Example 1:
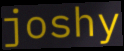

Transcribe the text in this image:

joshy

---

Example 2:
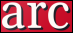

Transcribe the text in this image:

arc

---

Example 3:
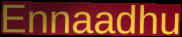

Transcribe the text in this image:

Ennaadhu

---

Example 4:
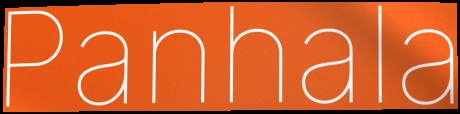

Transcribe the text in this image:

Panhala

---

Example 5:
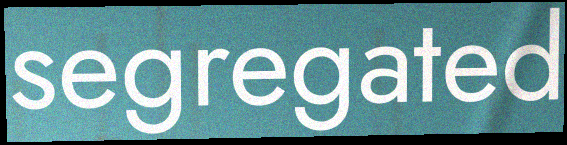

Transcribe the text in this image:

segregated